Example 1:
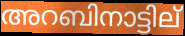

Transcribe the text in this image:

അറബിനാട്ടില്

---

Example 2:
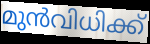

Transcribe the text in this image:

മുൻവിധിക്ക്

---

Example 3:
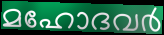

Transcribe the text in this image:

മഹോദവർ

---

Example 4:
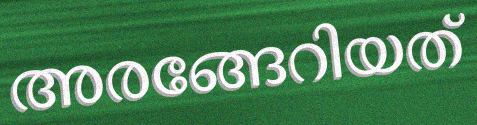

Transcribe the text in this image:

അരങ്ങേറിയത്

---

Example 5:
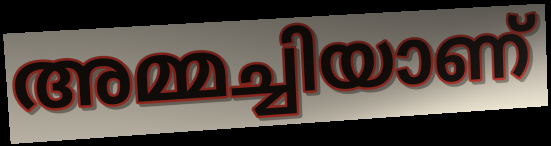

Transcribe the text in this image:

അമ്മച്ചിയാണ്